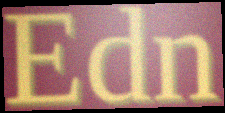
Edn